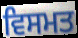
ਵਿਸਮਤ